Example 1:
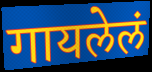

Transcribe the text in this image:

गायलेलं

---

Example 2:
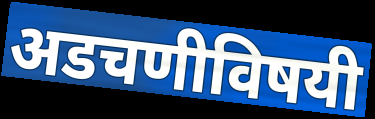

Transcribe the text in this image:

अडचणीविषयी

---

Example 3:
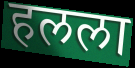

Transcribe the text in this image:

हलला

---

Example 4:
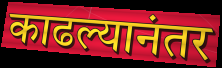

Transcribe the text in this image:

काढल्यानंतर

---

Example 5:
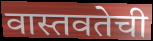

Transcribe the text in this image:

वास्तवतेची